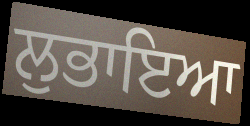
ਲੁਭਾਇਆ